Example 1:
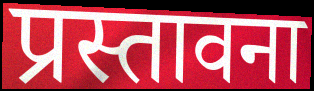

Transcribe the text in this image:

प्रस्तावना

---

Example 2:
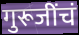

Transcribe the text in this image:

गुरूजींचं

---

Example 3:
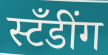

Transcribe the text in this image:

स्टँडींग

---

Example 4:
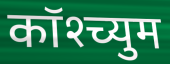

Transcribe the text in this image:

कॉश्च्युम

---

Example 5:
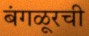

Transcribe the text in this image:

बंगळूरची